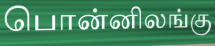
பொன்னிலங்கு